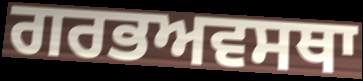
ਗਰਭਅਵਸਥਾ